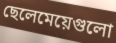
ছেলেমেয়েগুলো